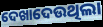
ଦେଖାଦେଉଥିଲା